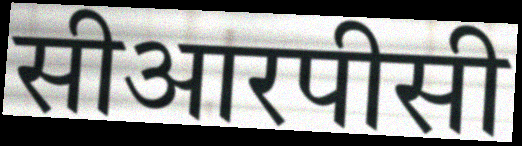
सीआरपीसी